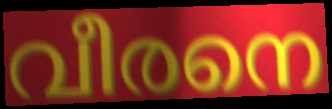
വീരനെ